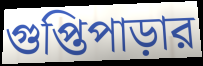
গুপ্তিপাড়ার